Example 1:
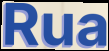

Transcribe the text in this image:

Rua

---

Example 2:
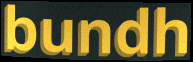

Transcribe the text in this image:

bundh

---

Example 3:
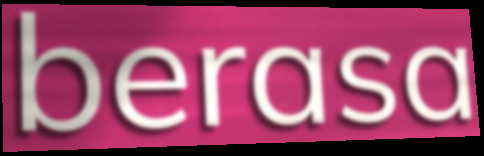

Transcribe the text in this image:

berasa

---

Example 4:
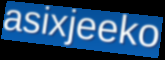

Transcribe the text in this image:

asixjeeko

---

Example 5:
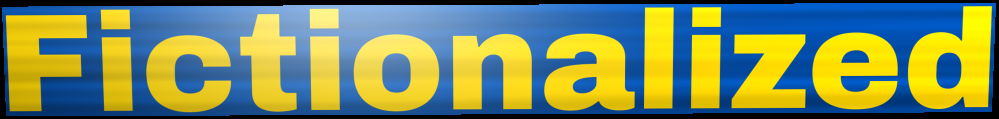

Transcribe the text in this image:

Fictionalized